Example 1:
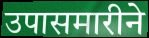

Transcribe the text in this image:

उपासमारीने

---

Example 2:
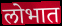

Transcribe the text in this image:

लोभात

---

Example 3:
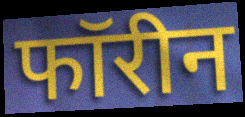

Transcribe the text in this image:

फॉरीन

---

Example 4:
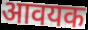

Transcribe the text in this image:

आवयक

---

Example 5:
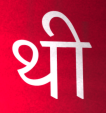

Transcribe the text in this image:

थी